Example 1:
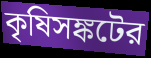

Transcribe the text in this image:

কৃষিসঙ্কটের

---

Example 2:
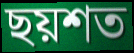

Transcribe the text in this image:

ছয়শত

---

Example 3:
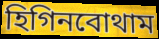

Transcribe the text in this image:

হিগিনবোথাম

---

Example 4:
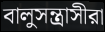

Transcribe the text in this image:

বালুসন্ত্রাসীরা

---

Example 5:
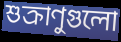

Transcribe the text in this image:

শুক্রাণুগুলো